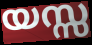
യസ്സ